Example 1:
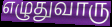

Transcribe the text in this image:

எழுதுவாரு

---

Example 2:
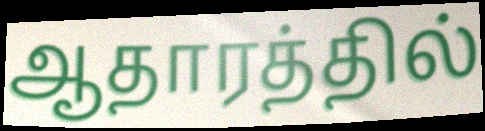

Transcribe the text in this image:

ஆதாரத்தில்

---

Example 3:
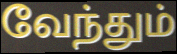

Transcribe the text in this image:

வேந்தும்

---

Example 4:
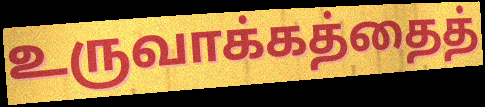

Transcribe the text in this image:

உருவாக்கத்தைத்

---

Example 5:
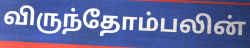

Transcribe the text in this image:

விருந்தோம்பலின்